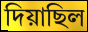
দিয়াছিল